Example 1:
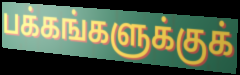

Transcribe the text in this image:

பக்கங்களுக்குக்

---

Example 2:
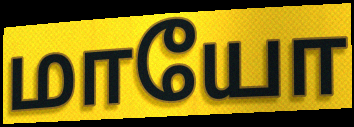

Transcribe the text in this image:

மாயோ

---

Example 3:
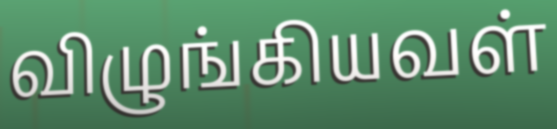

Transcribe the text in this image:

விழுங்கியவள்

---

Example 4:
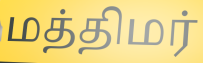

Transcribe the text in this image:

மத்திமர்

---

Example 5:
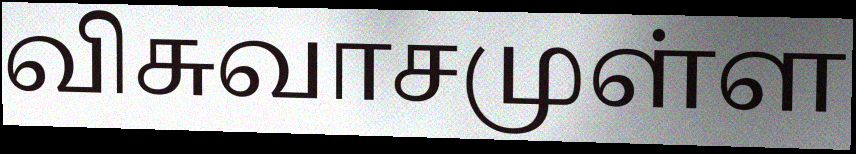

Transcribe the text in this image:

விசுவாசமுள்ள